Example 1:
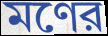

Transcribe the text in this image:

মণের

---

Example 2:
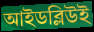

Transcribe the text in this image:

আইডব্লিউই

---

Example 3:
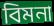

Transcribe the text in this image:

বিমনা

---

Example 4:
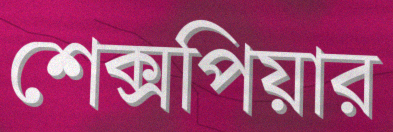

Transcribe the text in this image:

শেক্সপিয়ার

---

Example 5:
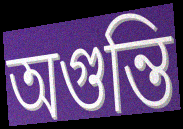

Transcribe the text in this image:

অগুন্তি